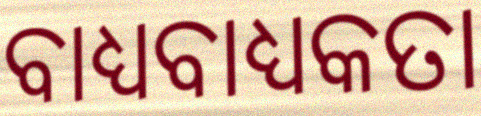
ବାଧ୍ୟବାଧ୍ୟକତା